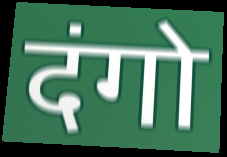
दंगो